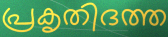
പ്രകൃതിദത്ത